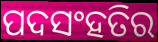
ପଦସଂହତିର